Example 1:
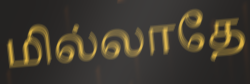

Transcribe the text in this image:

மில்லாதே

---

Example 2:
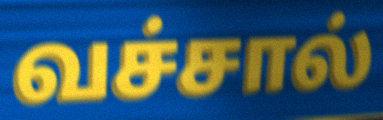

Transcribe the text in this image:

வச்சால்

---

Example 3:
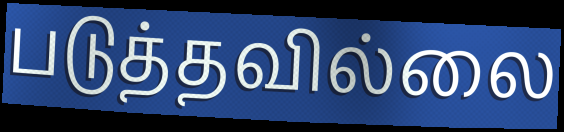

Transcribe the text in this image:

படுத்தவில்லை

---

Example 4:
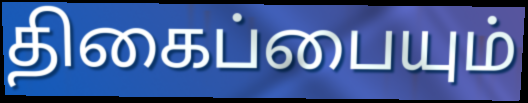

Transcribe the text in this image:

திகைப்பையும்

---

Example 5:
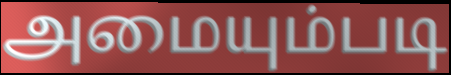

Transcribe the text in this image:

அமையும்படி